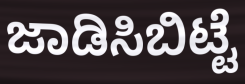
ಜಾಡಿಸಿಬಿಟ್ಟೆ